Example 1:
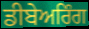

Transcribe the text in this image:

ਡੀਬੇਅਰਿੰਗ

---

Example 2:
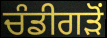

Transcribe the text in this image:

ਚੰਡੀਗੜੋਂ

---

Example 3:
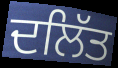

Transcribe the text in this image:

ਦਲਿੱਤ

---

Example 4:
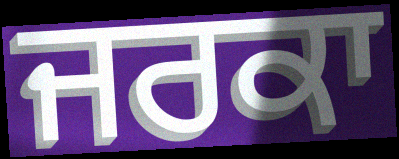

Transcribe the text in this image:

ਜਰਕਾ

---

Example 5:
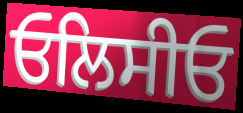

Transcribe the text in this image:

ਓਲਿਸੀਓ